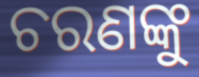
ଚରଣଙ୍କୁ